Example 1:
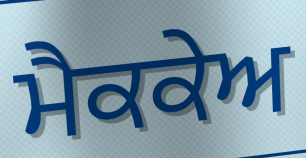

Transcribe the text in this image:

ਮੈਕਕੇਅ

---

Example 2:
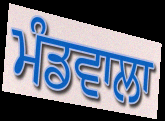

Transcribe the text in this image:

ਮੰਡਵਾਲਾ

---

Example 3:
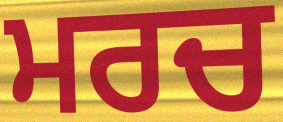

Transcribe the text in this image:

ਮਰਚ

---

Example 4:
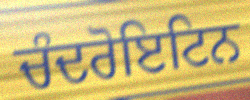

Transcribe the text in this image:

ਚੰਦਰੋਇਟਿਨ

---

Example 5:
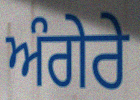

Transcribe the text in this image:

ਅੰਗੇਰੇ